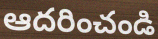
ఆదరించండి